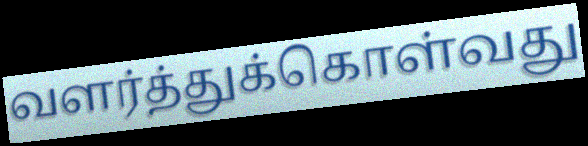
வளர்த்துக்கொள்வது